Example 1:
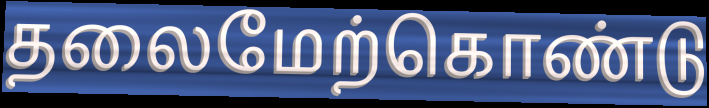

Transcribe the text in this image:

தலைமேற்கொண்டு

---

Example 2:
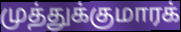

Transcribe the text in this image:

முத்துக்குமாரக்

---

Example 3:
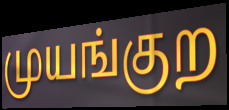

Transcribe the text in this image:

முயங்குற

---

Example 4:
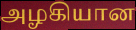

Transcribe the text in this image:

அழகியான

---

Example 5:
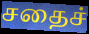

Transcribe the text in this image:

சதைச்